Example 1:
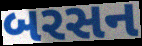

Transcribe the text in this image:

બરસન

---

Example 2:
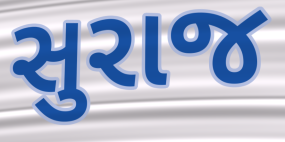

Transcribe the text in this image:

સુરાજ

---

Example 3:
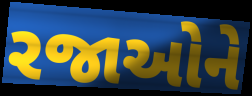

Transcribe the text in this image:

રજાઓને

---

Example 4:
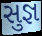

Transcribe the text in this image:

સુજ્ઞ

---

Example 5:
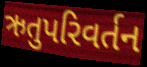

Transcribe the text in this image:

ઋતુપરિવર્તન